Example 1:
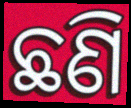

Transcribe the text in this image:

ଛଣି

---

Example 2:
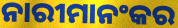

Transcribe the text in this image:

ନାରୀମାନଂକର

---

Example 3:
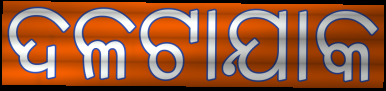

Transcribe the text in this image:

ଦଳଟାଯାକ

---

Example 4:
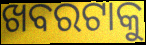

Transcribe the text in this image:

ଖବରଟାକୁ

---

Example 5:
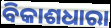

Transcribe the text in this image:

ବିକାଶଧାରା